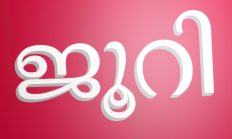
ജൂറി